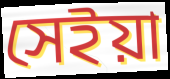
সেইয়া